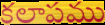
కలాపము